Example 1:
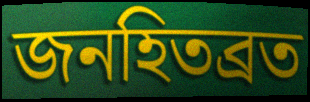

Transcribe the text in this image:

জনহিতব্রত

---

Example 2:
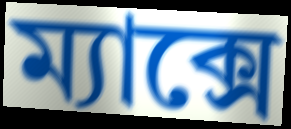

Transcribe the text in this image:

ম্যাক্সে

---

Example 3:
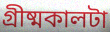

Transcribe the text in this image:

গ্রীষ্মকালটা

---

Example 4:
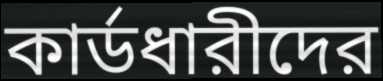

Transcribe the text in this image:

কার্ডধারীদের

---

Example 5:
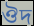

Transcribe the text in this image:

ঔদ